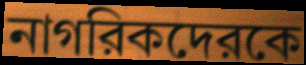
নাগরিকদেরকে